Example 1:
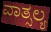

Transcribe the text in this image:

ವಾತ್ಸಲ್ಯ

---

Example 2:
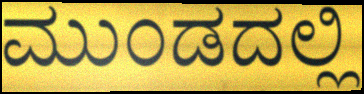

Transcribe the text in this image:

ಮುಂಡದಲ್ಲಿ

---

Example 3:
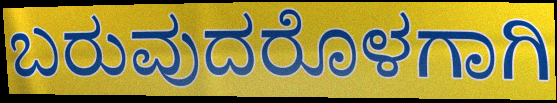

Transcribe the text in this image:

ಬರುವುದರೊಳಗಾಗಿ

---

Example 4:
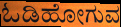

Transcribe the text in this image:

ಓಡಿಹೋಗುವ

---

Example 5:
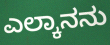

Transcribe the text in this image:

ಎಲ್ಕಾನನು